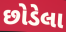
છોડેલા